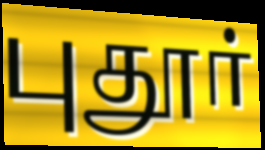
புதூர்